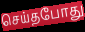
செய்தபோது